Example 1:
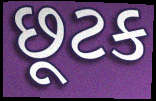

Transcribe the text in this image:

છૂટક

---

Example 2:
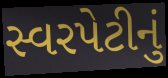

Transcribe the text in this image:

સ્વરપેટીનું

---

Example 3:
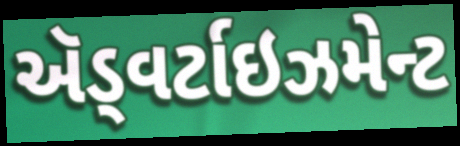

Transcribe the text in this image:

ઍડ્વર્ટાઇઝમેન્ટ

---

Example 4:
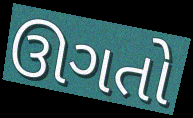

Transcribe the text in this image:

ઊગતો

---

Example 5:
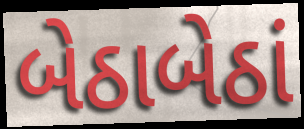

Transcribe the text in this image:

બેઠાબેઠાં